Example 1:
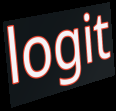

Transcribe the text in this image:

logit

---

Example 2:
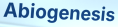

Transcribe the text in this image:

Abiogenesis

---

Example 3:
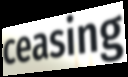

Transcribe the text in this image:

ceasing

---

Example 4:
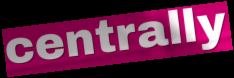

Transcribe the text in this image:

centrally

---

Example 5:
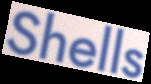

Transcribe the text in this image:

Shells